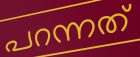
പറന്നത്